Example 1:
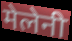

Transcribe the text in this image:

मेलेनी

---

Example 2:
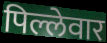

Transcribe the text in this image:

पिल्लेवार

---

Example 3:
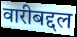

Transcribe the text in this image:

वारीबद्दल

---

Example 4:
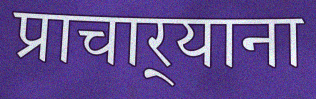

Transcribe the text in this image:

प्राचार्याना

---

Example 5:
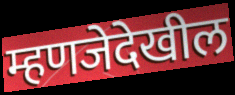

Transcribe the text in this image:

म्हणजेदेखील